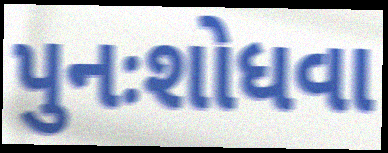
પુનઃશોધવા